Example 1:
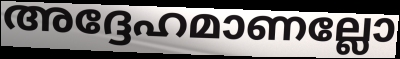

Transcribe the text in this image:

അദ്ദേഹമാണല്ലോ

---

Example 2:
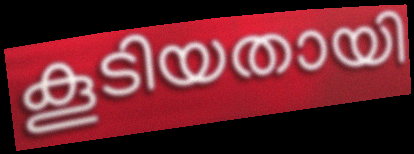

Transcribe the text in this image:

കൂടിയതായി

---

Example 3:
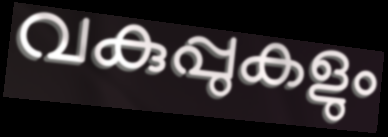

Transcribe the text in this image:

വകുപ്പുകളും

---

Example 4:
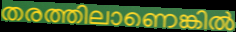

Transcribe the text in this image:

തരത്തിലാണെങ്കിൽ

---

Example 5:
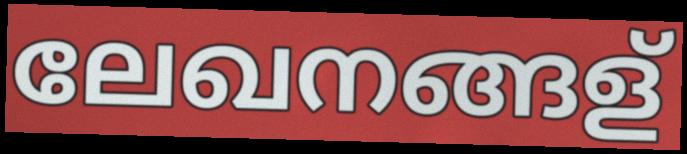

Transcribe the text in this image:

ലേഖനങ്ങള്